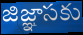
జిజ్ఞాసకు